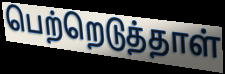
பெற்றெடுத்தாள்